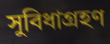
সুবিধাগ্রহণ